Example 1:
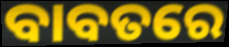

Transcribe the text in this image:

ବାବତରେ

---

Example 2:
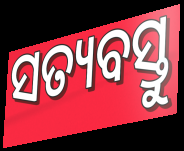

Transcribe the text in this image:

ସତ୍ୟବସ୍ତୁ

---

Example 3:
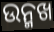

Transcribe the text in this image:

ଉନ୍ମଖ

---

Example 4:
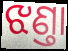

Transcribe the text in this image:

ଝଣ୍ତା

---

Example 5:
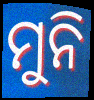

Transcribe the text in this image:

ମୁନି